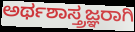
ಅರ್ಥಶಾಸ್ತ್ರಜ್ಞರಾಗಿ